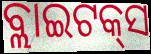
ବ୍ଲାଇଟକ୍‌ସ